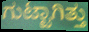
ಗುಟ್ಟಾಗಿತ್ತು